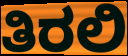
ತಿರಲಿ